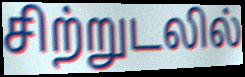
சிற்றுடலில்